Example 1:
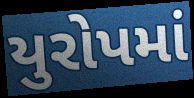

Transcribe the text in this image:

યુરોપમાં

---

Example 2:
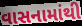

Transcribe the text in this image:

વાસનામાંથી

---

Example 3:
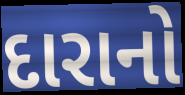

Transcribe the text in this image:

દારાનો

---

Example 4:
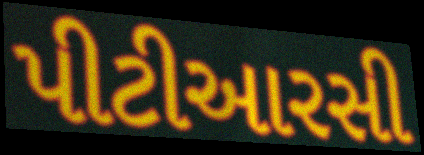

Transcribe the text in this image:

પીટીઆરસી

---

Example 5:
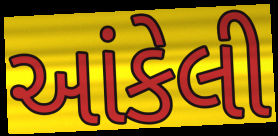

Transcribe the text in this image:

આંકેલી